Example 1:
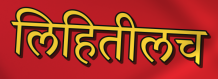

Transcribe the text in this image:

लिहितीलच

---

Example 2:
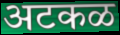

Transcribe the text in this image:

अटकळ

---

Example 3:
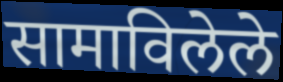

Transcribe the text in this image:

सामाविलेले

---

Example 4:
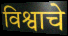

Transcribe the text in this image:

विश्वाचे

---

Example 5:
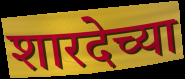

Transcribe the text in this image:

शारदेच्या